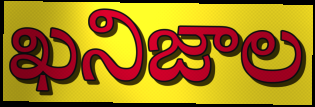
ఖనిజాల